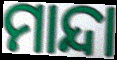
ମାନ୍ଦା